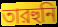
তারহুনি